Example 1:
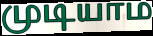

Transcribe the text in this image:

முடியாம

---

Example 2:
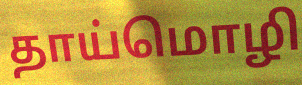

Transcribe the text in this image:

தாய்மொழி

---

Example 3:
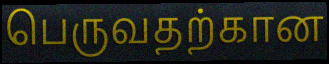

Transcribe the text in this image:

பெருவதற்கான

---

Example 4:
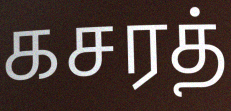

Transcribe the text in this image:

கசரத்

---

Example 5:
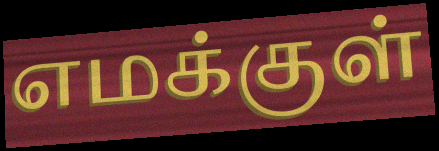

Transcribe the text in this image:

எமக்குள்